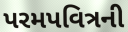
પરમપવિત્રની